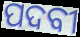
ପଦବୀ